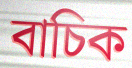
বাচিক